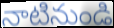
నాటినుండి